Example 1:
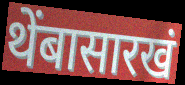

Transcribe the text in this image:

थेंबासारखं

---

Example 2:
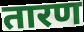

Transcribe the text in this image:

तारण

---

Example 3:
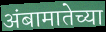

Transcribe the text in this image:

अंबामातेच्या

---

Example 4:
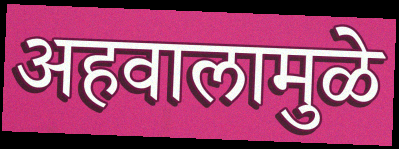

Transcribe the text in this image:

अहवालामुळे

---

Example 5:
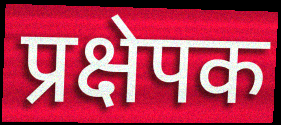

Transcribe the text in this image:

प्रक्षेपक